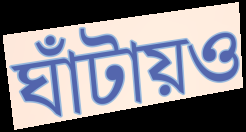
ঘাঁটায়ও